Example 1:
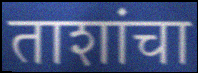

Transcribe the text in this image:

ताशांचा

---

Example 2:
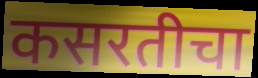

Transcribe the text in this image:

कसरतीचा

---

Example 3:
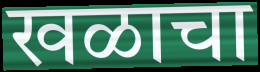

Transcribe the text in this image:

खळाचा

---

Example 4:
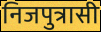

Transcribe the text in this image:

निजपुत्रासी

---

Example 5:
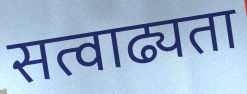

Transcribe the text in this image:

सत्वाढ्यता